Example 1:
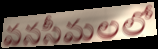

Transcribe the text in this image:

వనసీమలలో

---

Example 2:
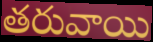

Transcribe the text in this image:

తరువాయి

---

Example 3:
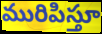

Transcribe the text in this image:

మురిపిస్తూ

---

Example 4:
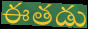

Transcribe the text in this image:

ఈతడు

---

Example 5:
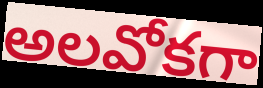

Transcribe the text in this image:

అలవోకగా